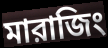
মারাজিং